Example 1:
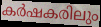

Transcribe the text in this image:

കർഷകരിലും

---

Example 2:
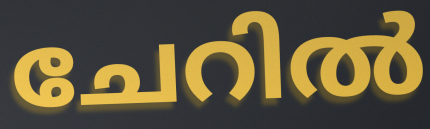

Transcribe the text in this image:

ചേറിൽ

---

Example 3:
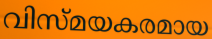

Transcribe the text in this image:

വിസ്മയകരമായ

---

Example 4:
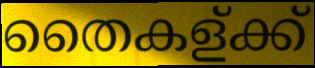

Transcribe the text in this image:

തൈകള്ക്ക്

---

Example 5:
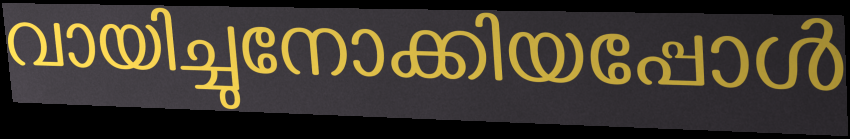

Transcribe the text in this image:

വായിച്ചുനോക്കിയപ്പോൾ